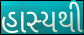
હાસ્યથી